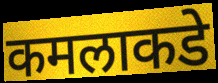
कमलाकडे